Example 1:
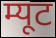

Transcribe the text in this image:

म्यूट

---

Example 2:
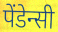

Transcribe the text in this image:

पेंडेन्सी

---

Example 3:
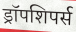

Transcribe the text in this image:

ड्रॉपशिपर्स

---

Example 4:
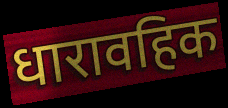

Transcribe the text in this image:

धारावहिक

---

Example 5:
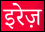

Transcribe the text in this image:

इरेज़